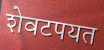
शेवटपयत